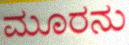
ಮೂರನು